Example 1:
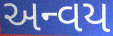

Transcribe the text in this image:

અન્વય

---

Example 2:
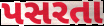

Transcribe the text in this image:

પસરતા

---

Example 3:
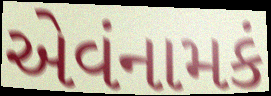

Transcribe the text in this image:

એવંનામકં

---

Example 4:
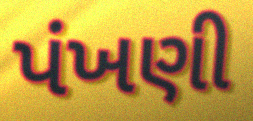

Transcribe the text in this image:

પંખણી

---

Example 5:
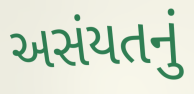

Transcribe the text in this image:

અસંયતનું